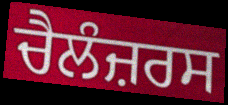
ਚੈਲੰਜ਼ਰਸ